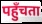
पहुँचता